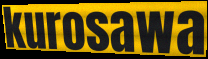
kurosawa